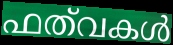
ഫത്‌വകൾ